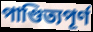
পাণ্ডিত্যপূর্ণ